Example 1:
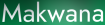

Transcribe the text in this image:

Makwana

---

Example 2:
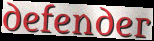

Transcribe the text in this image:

defender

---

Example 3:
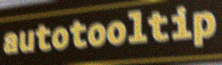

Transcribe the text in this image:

autotooltip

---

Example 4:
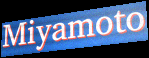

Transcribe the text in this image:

Miyamoto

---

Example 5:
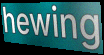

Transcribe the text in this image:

hewing